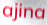
ajina